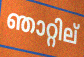
ഞാറ്റില്